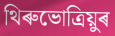
থিৰুভোত্ৰিয়ুৰ